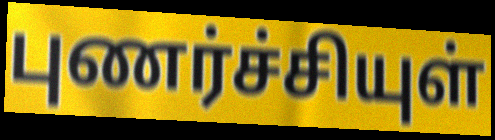
புணர்ச்சியுள்